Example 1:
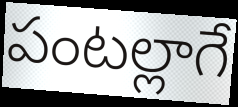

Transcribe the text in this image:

పంటల్లాగే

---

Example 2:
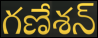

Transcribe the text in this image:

గణేశన్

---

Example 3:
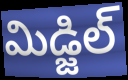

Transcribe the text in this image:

మిడ్జిల్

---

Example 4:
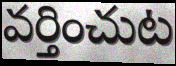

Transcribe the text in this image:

వర్తించుట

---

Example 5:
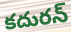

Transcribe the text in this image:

కదురన్